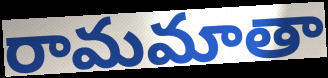
రామమాతా